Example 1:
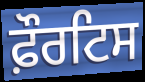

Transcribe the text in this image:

ਫ਼ੌਰਟਿਸ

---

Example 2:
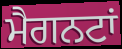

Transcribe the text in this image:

ਮੈਗਨਟਾਂ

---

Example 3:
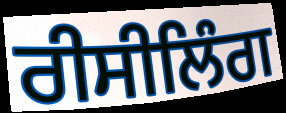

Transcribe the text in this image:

ਰੀਸੀਲਿੰਗ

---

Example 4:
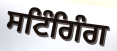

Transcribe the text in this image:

ਸਟਿੰਗਿੰਗ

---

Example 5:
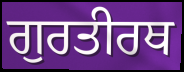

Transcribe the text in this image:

ਗੁਰਤੀਰਥ